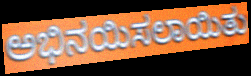
ಅಭಿನಯಿಸಲಾಯಿತು